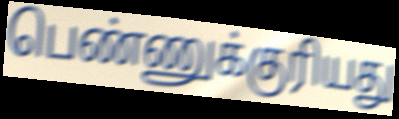
பெண்ணுக்குரியது